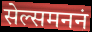
सेल्समननं